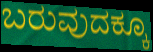
ಬರುವುದಕ್ಕೂ